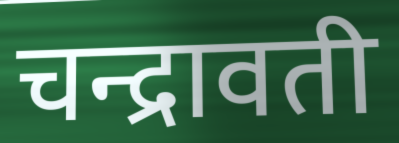
चन्द्रावती